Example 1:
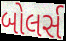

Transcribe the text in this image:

બોલર્સ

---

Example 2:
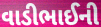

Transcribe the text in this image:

વાડીભાઈની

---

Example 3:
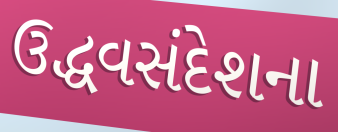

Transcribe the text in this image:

ઉદ્ધવસંદેશના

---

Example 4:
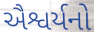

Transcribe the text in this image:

ઐશ્વર્યનો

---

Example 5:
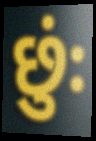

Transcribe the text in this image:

છુંઃ